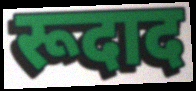
रूदाद